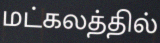
மட்கலத்தில்